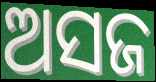
ଅସଜ